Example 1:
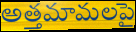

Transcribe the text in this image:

అత్తమామలపై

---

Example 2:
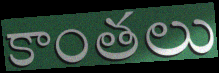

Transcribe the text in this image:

కాంతలు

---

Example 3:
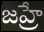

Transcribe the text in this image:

జహ్రే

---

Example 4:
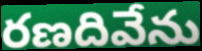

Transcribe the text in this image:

రణదివేను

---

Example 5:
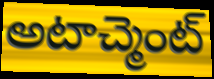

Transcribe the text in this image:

అటాచ్మెంట్